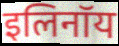
इलिनॉय